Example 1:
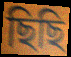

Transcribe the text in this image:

ছিছি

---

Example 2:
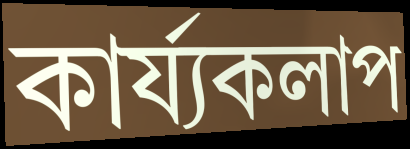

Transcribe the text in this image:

কাৰ্য্যকলাপ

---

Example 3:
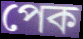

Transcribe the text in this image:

পেক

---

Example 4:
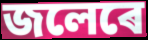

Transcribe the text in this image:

জলেৰে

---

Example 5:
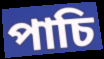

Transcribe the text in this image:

পাচি